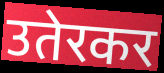
उतेरकर